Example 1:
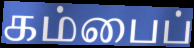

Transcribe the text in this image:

கம்பைப்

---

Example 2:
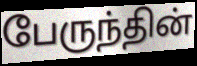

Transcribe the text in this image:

பேருந்தின்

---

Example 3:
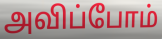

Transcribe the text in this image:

அவிப்போம்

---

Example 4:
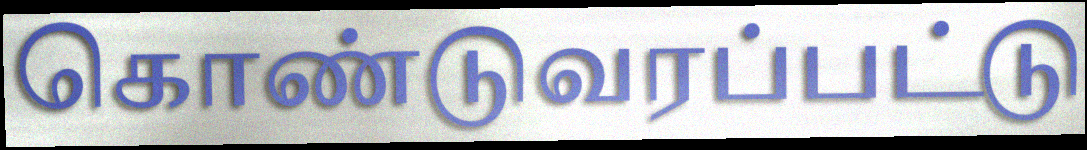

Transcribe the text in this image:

கொண்டுவரப்பட்டு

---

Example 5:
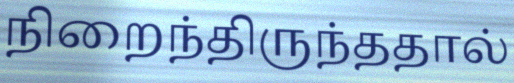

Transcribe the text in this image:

நிறைந்திருந்ததால்